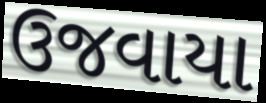
ઉજવાયા